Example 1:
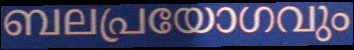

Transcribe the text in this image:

ബലപ്രയോഗവും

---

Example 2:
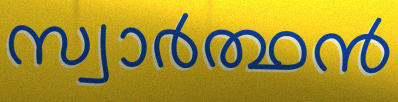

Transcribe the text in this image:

സ്വാർത്ഥൻ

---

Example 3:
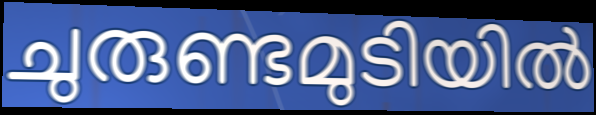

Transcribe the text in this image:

ചുരുണ്ടമുടിയിൽ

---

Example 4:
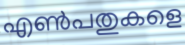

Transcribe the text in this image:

എൺപതുകളെ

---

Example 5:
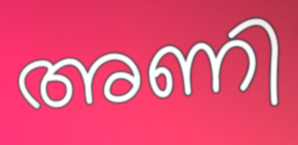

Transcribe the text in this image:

അണി